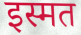
इस्मत